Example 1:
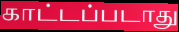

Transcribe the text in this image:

காட்டப்படாது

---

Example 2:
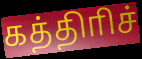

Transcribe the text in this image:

கத்திரிச்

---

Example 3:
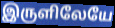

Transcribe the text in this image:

இருளிலேயே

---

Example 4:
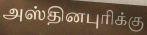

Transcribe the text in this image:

அஸ்தினபுரிக்கு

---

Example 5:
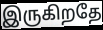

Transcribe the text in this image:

இருகிறதே